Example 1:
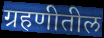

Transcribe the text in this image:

ग्रहणीतील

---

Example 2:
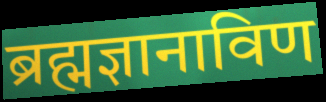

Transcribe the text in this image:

ब्रह्मज्ञानाविण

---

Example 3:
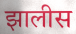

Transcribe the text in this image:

झालीस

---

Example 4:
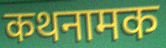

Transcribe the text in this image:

कथनामक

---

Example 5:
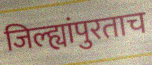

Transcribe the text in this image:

जिल्ह्यांपुरताच